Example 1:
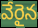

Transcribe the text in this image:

వేరైన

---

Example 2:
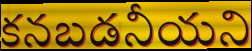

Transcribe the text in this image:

కనబడనీయని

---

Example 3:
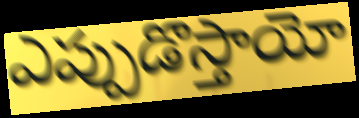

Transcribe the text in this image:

ఎప్పుడొస్తాయో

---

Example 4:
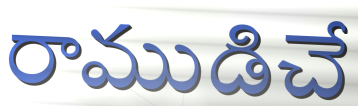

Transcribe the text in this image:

రాముడిచే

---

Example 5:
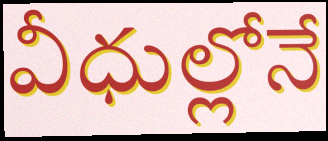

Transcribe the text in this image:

వీధుల్లోనే